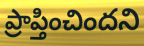
ప్రాప్తించిందని